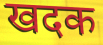
खदक